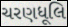
ચરણધૂલિ